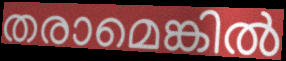
തരാമെങ്കിൽ